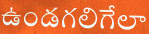
ఉండగలిగేలా